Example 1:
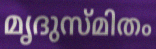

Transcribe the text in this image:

മൃദുസ്മിതം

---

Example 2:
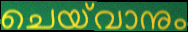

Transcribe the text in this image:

ചെയ്‌വാനും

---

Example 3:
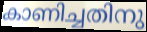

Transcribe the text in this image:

കാണിച്ചതിനു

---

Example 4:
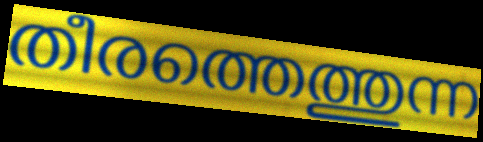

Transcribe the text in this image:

തീരത്തെത്തുന്ന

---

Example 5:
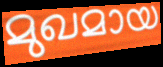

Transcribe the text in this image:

മുഖമായ